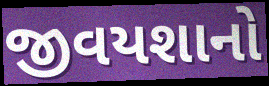
જીવયશાનો